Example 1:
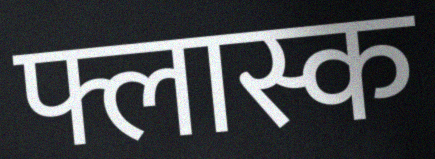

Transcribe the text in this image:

फ्लास्क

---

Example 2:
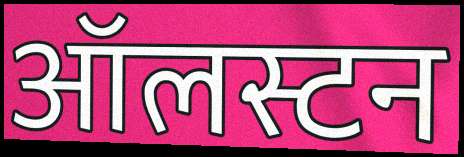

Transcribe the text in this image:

ऑलस्टन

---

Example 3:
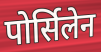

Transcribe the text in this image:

पोर्सिलेन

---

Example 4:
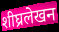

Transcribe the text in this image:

शीघ्रलेखन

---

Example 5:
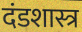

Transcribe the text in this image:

दंडशास्त्र